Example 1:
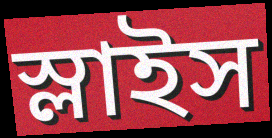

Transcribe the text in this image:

স্লাইস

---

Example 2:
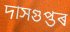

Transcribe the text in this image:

দাসগুপ্তৰ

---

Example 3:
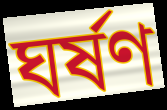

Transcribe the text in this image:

ঘৰ্ষণ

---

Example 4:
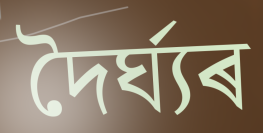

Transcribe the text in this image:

দৈৰ্ঘ্যৰ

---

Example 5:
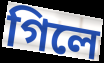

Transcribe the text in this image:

গিলে